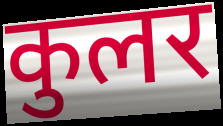
कुलर